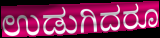
ಉಡುಗಿದರೂ